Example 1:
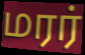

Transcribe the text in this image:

மரர்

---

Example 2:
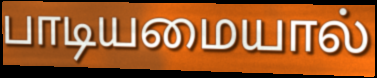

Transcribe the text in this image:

பாடியமையால்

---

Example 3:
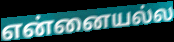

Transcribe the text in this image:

என்னையல்ல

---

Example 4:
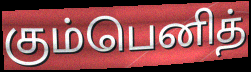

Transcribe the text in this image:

கும்பெனித்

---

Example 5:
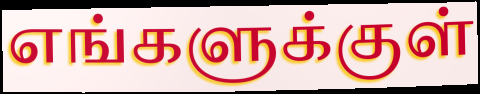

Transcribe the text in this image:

எங்களுக்குள்